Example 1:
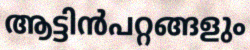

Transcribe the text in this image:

ആട്ടിൻപറ്റങ്ങളും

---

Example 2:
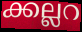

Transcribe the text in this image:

ക്കല്ലറ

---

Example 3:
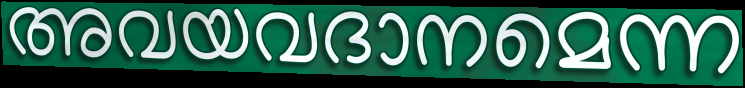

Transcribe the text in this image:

അവയവദാനമെന്ന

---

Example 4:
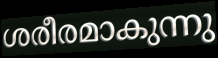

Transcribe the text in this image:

ശരീരമാകുന്നു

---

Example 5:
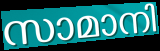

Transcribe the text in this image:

സാമാനി